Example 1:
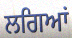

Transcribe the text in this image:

ਲਗਿਆਂ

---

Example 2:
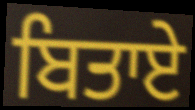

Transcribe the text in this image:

ਬਿਤਾਏ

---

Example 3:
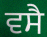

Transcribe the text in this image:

ਵਸੈ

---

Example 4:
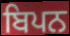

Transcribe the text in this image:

ਬਿਪਨ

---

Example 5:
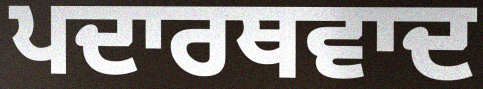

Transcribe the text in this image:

ਪਦਾਰਥਵਾਦ